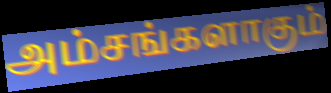
அம்சங்களாகும்